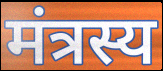
मंत्रस्य